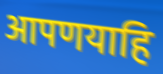
आपणयाहि